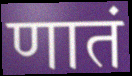
णातं